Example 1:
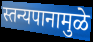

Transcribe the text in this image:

स्तन्यपानामुळे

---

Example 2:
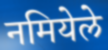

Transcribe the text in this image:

नमियेले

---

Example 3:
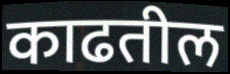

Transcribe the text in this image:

काढतील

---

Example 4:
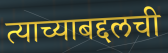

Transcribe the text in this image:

त्याच्याबद्दलची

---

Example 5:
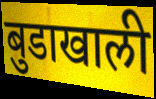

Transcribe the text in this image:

बुडाखाली